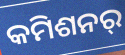
କମିଶନର୍